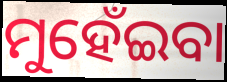
ମୁହେଁଇବା